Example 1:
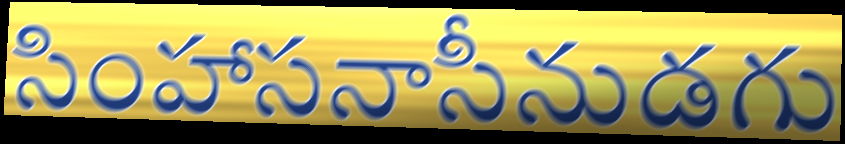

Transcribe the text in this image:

సింహాసనాసీనుడగు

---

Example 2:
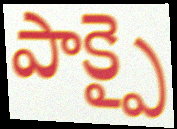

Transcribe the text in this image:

పాక్పై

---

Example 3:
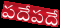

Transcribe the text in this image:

పదేపదే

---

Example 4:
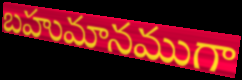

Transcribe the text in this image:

బహుమానముగా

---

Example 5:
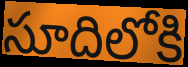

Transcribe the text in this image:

సూదిలోకి